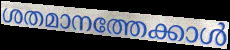
ശതമാനത്തേക്കാൾ